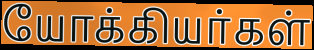
யோக்கியர்கள்